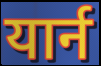
यार्न